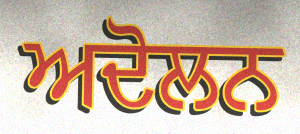
ਅਦੋਲਨ